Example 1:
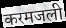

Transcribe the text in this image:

करमजली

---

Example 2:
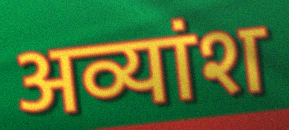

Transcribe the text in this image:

अव्यांश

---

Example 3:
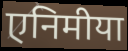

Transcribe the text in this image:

एनिमीया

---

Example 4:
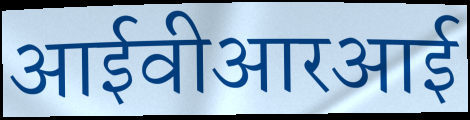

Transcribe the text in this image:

आईवीआरआई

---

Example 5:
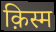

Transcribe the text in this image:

क़िस्‍म